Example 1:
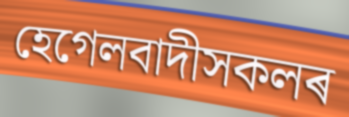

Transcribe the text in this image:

হেগেলবাদীসকলৰ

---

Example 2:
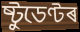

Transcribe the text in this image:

ষ্টুডেণ্টৰ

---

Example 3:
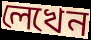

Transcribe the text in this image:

লেখেন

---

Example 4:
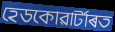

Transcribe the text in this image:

হেডকোৱাৰ্টাৰত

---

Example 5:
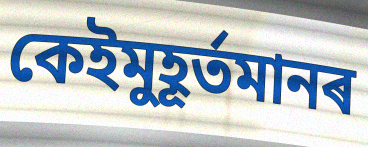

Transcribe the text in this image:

কেইমুহূৰ্তমানৰ